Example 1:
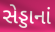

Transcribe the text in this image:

સેડ્ડાનાં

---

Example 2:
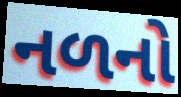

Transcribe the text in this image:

નળનો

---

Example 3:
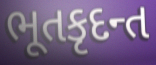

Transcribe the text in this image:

ભૂતકૃદન્ત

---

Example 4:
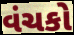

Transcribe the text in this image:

વંચકો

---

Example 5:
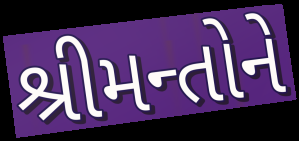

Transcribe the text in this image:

શ્રીમન્તોને